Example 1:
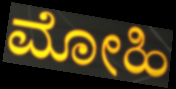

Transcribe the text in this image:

ಮೋಹಿ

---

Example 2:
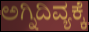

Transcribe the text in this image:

ಅಗ್ನಿದಿವ್ಯಕ್ಕೆ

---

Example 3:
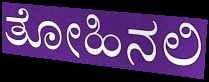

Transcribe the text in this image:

ತೋಹಿನಲಿ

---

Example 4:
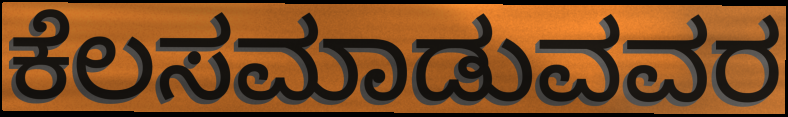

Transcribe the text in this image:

ಕೆಲಸಮಾಡುವವರ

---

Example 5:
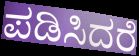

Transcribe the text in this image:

ಪಡಿಸಿದರೆ